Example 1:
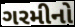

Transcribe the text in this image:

ગરમીનો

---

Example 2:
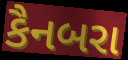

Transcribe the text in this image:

કૈનબરા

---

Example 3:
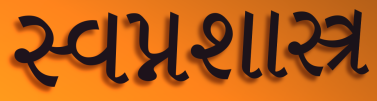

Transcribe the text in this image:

સ્વપ્નશાસ્ત્ર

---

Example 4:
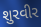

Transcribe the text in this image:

શુરવીર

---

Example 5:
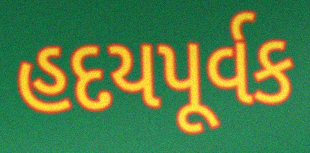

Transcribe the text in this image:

હદયપૂર્વક